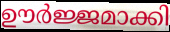
ഊർജ്ജമാക്കി